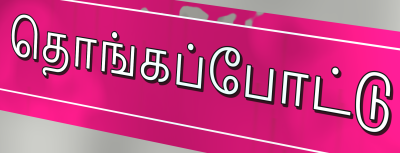
தொங்கப்போட்டு